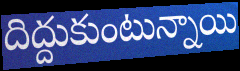
దిద్దుకుంటున్నాయి